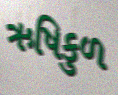
ઋષિકુળ